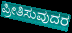
ಪ್ರೀತಿಸುವುದರ